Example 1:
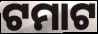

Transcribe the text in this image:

ଟମାଟ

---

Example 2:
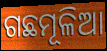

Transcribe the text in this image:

ଗଛମୂଳିଆ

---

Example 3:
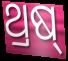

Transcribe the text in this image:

ଥ୍ରଷ୍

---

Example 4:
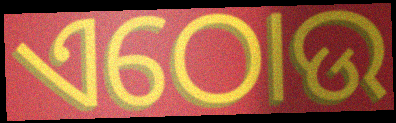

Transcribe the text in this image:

ଏଠୋଉ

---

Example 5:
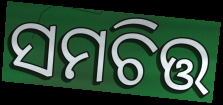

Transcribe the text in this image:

ସମଚିତ୍ତ